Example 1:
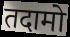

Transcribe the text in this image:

तदामो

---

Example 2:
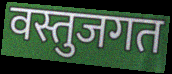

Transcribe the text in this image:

वस्तुजगत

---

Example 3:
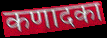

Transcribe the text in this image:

कणादका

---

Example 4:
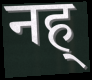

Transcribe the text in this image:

नह्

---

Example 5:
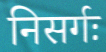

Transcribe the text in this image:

निसर्गः